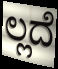
ಲ್ಲದೆ